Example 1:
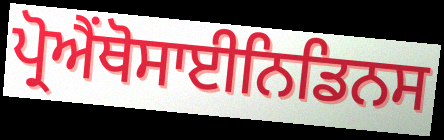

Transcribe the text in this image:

ਪ੍ਰੋਐਂਥੋਸਾਈਨਿਡਿਨਸ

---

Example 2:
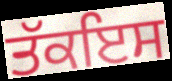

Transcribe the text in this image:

ਤੱਕਇਸ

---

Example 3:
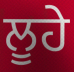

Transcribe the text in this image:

ਲੂਹੇ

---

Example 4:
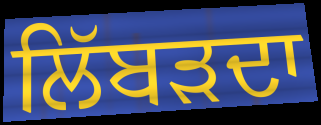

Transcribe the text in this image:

ਲਿੱਬੜਦਾ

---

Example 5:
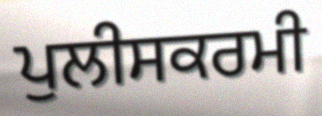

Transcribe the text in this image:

ਪੁਲੀਸਕਰਮੀ